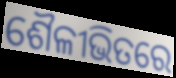
ଶୈଳୀଭିତରେ